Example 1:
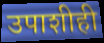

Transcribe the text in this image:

उपाशीही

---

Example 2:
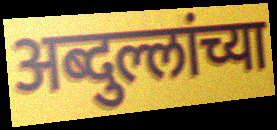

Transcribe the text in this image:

अब्दुल्लांच्या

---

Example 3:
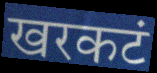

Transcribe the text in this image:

खरकटं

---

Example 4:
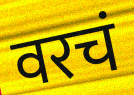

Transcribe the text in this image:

वरचं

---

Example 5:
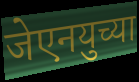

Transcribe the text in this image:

जेएनयुच्या